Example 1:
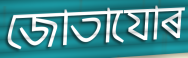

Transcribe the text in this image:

জোতাযোৰ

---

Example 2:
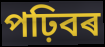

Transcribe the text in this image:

পঢ়িবৰ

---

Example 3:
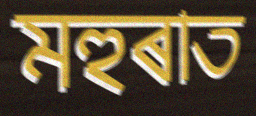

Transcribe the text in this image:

মহুৰাত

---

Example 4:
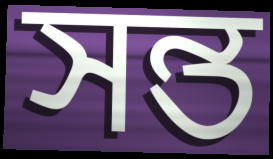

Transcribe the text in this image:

সন্ত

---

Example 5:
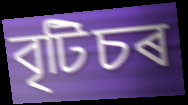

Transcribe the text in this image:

বৃটিচৰ